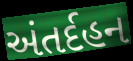
અંતર્દહન